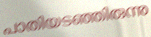
പാതിയടഞ്ഞിരുന്നു